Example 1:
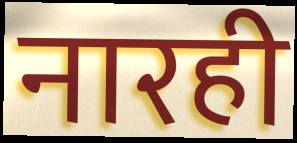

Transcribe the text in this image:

नारही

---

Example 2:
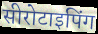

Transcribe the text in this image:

सीरोटाइपिंग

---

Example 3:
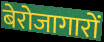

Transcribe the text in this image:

बेरोजागारों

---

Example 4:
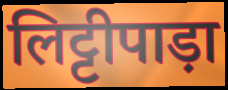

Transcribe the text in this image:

लिट्टीपाड़ा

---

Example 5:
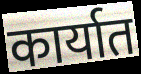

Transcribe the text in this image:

कार्यात